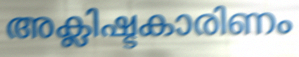
അക്ലിഷ്ടകാരിണം